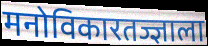
मनोविकारतज्ज्ञाला